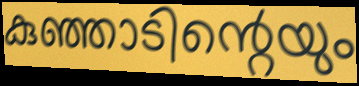
കുഞ്ഞാടിന്റെയും